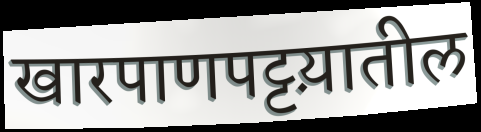
खारपाणपट्टय़ातील